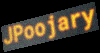
JPoojary